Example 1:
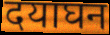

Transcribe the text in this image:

दयाघन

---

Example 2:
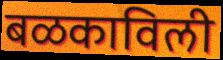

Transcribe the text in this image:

बळकाविली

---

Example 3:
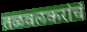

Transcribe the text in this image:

तळवलकरांचं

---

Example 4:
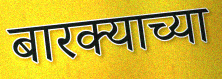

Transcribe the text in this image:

बारक्याच्या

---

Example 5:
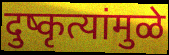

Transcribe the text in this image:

दुष्कृत्यांमुळे